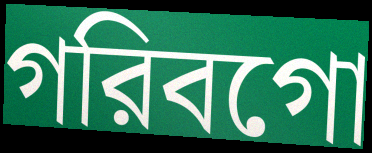
গরিবগো